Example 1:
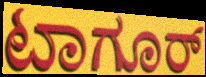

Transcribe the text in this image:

ಟಾಗೂರ್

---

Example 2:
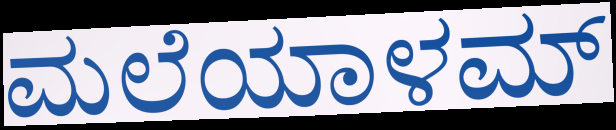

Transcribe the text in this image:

ಮಲೆಯಾಳಮ್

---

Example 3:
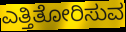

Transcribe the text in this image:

ಎತ್ತಿತೋರಿಸುವ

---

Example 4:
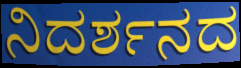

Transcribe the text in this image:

ನಿದರ್ಶನದ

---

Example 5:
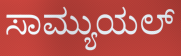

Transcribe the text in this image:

ಸಾಮ್ಯುಯಲ್